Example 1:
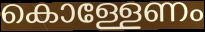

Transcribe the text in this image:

കൊള്ളേണം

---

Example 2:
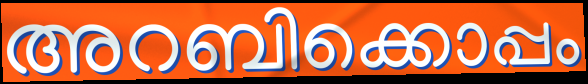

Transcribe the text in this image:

അറബിക്കൊപ്പം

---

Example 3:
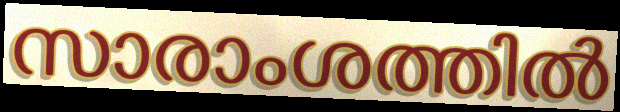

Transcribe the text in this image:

സാരാംശത്തിൽ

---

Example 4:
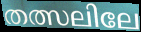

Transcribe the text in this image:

തത്സലിലേ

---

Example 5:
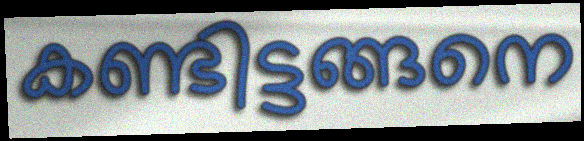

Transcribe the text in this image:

കണ്ടിട്ടങ്ങനെ